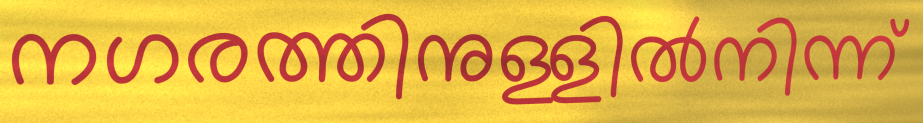
നഗരത്തിനുള്ളിൽനിന്ന്